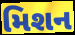
મિશન